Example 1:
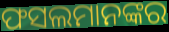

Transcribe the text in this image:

ଫସଲମାନଙ୍କର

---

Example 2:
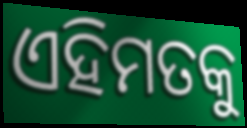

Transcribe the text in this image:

ଏହିମତକୁ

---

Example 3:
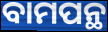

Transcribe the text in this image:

ବାମପନ୍ଥ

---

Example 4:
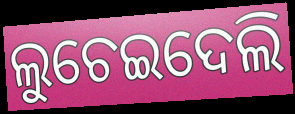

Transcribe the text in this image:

ଲୁଚେଇଦେଲି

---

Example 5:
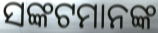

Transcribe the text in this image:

ସଙ୍କଟମାନଙ୍କ